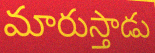
మారుస్తాడు